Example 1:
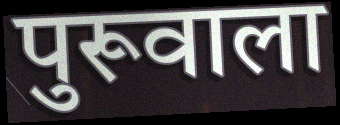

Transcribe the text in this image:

पुरूवाला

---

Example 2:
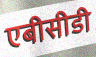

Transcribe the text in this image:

एबीसीडी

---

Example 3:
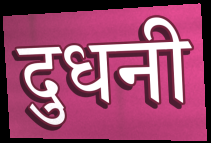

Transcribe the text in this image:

दुधनी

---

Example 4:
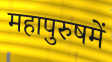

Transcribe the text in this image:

महापुरुषमें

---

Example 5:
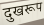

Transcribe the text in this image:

दुखरूप